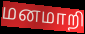
மனமாறி